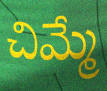
చిమ్మే